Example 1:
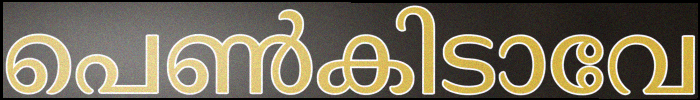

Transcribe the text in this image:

പെൺകിടാവേ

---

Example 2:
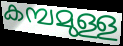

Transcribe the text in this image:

കമ്പമുള്ള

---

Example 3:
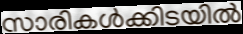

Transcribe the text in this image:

സാരികൾക്കിടയിൽ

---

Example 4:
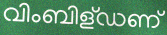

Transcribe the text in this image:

വിംബിള്ഡണ്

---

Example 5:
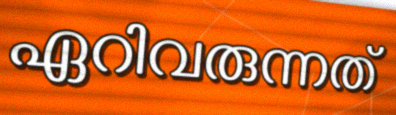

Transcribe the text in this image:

ഏറിവരുന്നത്